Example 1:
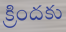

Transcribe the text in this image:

క్రిందకు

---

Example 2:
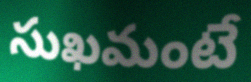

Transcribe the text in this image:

సుఖమంటే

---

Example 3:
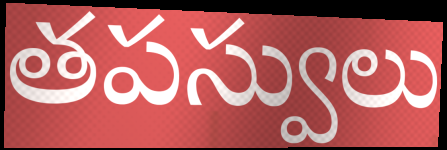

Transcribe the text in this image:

తపస్వులు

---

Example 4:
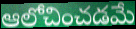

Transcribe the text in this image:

ఆలోచించడమే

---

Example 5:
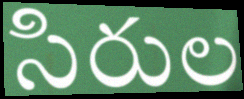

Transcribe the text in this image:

సిరుల